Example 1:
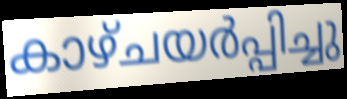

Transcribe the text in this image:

കാഴ്ചയർപ്പിച്ചു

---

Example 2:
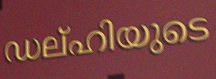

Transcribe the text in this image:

ഡല്ഹിയുടെ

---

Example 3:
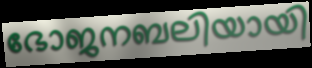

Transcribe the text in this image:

ഭോജനബലിയായി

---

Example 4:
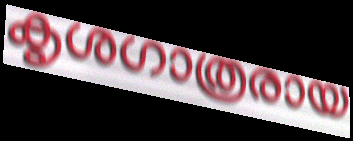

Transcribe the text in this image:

കൃശഗാത്രരായ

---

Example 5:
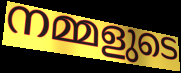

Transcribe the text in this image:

നമ്മളുടെ